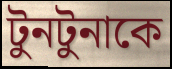
টুনটুনাকে